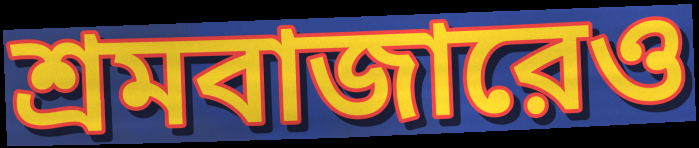
শ্রমবাজারেও